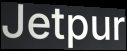
Jetpur